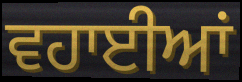
ਵਹਾਈਆਂ